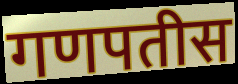
गणपतीस